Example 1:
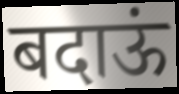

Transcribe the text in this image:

बदाऊं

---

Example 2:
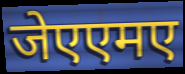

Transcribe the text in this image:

जेएएमए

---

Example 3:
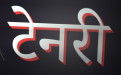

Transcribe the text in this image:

टेनरी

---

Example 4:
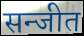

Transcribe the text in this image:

सन्जीत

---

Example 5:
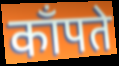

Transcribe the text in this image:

काँपते